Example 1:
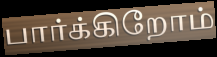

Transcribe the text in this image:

பார்க்கிறோம்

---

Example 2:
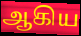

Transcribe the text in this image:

ஆகிய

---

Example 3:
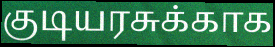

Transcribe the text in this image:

குடியரசுக்காக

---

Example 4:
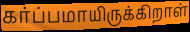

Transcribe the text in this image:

கர்ப்பமாயிருக்கிறாள்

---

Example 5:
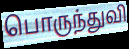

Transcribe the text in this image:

பொருந்துவி